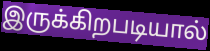
இருக்கிறபடியால்